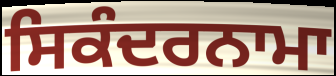
ਸਿਕੰਦਰਨਾਮਾ